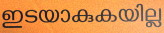
ഇടയാകുകയില്ല